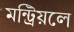
মন্ট্রিয়লে